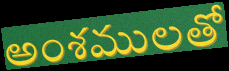
అంశములతో